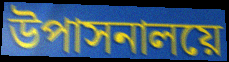
উপাসনালয়ে